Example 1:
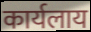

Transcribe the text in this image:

कार्यलाय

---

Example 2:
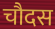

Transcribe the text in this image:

चौदस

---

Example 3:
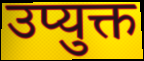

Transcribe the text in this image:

उप्युक्त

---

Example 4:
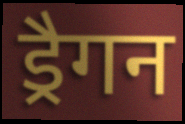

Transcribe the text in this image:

ड्रैगन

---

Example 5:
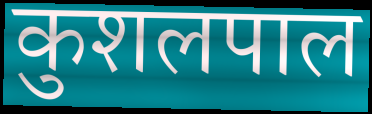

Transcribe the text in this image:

कुशलपाल